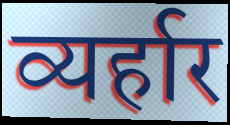
व्यर्हार